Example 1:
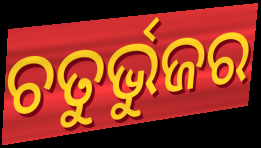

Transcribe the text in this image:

ଚତୁର୍ଭୁଜର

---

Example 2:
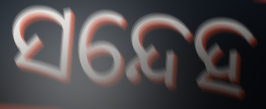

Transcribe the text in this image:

ସନ୍ଦେହ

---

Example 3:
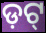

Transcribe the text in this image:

ଡ଼ଟ୍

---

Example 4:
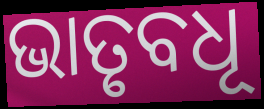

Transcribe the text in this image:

ଭାତୃବଧୂ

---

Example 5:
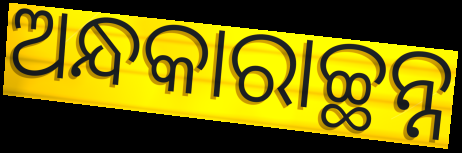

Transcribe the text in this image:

ଅନ୍ଧକାରାଚ୍ଛନ୍ନ